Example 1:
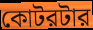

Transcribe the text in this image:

কোটরটার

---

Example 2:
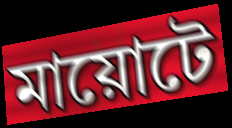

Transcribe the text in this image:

মায়োটে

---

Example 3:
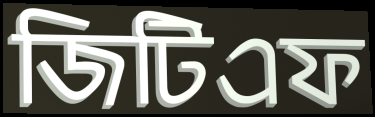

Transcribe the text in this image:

জিটিএফ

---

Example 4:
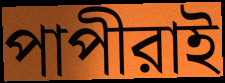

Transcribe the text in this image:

পাপীরাই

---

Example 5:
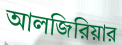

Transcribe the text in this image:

আলজিরিয়ার